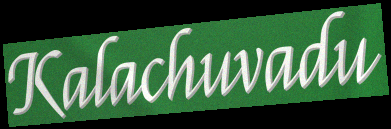
Kalachuvadu